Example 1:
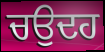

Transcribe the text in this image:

ਚਉਦਹ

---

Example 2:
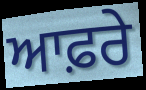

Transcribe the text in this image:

ਆਫ਼ਰੇ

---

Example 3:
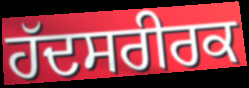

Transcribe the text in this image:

ਹੱਦਸਰੀਰਕ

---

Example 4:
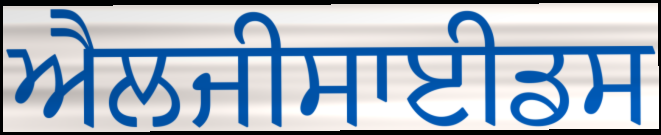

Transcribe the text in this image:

ਐਲਜੀਸਾਈਡਸ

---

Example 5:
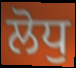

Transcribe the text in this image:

ਲੋਧੁ